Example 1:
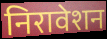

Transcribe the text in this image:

निरावेशन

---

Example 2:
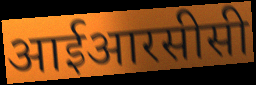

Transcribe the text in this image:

आईआरसीसी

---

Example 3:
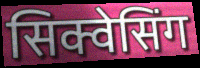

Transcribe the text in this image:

सिक्वेसिंग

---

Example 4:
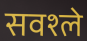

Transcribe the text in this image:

सवश्ले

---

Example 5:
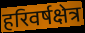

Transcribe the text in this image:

हरिवर्षक्षेत्र